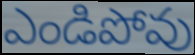
ఎండిపోవు